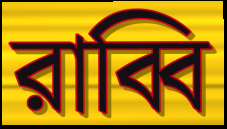
রাব্বি